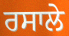
ਰਸਾਲੇ